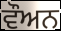
ਵੌਅਨ